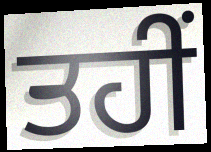
ਤਹੀਂ